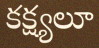
కక్ష్యలూ